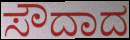
ಸೌದಾದ